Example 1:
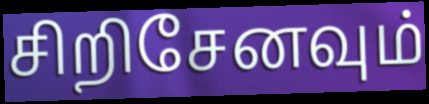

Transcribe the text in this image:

சிறிசேனவும்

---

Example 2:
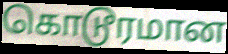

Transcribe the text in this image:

கொடூரமான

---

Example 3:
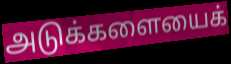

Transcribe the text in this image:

அடுக்களையைக்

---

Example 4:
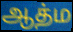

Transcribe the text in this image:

ஆத்ம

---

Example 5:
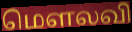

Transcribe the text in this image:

மௌலவி